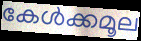
കേൾക്കമൂല